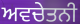
ਅਵਚੇਤਨੀ